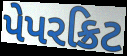
પેપરક્રિટ